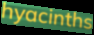
hyacinths